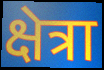
क्षेत्रा